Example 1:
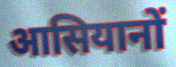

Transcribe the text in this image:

आसियानों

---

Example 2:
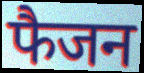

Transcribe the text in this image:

फैजन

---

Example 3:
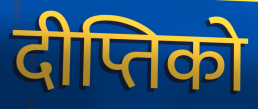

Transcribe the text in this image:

दीप्तिको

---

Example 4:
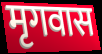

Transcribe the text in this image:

मृगवास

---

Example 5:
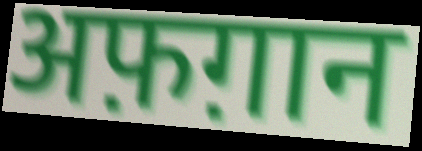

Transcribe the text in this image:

अफ़ग़ान